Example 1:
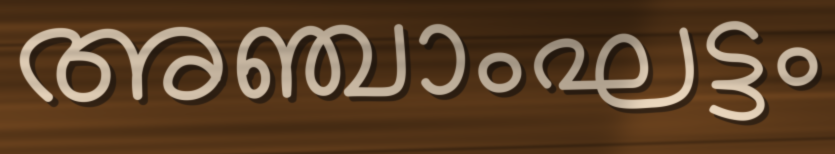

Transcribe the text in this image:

അഞ്ചാംഘട്ടം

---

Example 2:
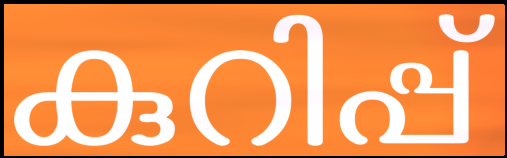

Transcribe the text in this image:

കുറിപ്പ്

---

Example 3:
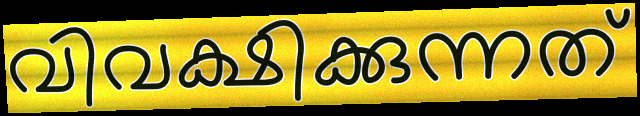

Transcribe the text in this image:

വിവക്ഷിക്കുന്നത്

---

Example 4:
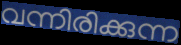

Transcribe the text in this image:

വന്നിരിക്കുന്ന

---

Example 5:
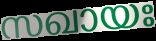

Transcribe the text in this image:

സഖായഃ